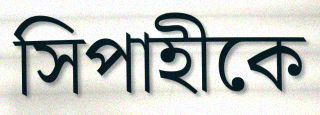
সিপাহীকে